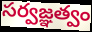
సర్వజ్ఞత్వం